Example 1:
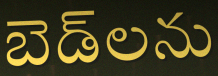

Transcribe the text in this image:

బెడ్‌లను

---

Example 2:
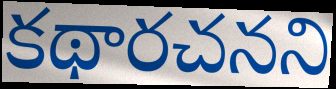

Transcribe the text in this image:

కథారచనని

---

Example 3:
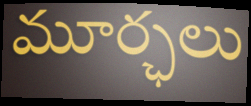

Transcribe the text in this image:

మూర్ఛలు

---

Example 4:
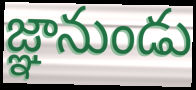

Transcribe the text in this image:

జ్ఞానుండు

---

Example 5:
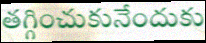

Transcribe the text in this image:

తగ్గించుకునేందుకు